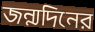
জন্মদিনের